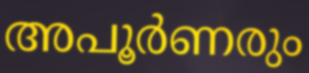
അപൂർണരും